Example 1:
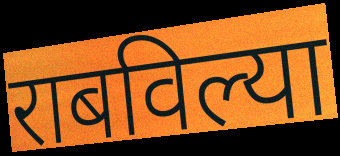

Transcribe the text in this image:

राबविल्या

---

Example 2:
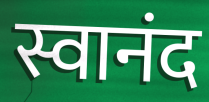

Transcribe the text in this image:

स्वानंद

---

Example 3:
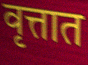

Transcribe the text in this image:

वृत्तात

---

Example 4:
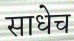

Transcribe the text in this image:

साधेच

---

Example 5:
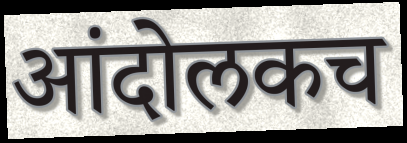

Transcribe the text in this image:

आंदोलकच